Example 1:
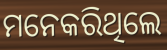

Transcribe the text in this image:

ମନେକରିଥିଲେ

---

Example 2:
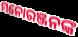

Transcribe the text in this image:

ମନୋରଞ୍ଜନଙ୍କ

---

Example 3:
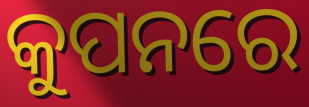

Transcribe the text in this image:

କୁପନରେ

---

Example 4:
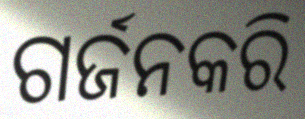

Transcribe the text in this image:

ଗର୍ଜନକରି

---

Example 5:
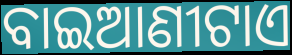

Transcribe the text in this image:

ବାଇଆଣୀଟାଏ